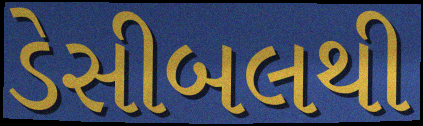
ડેસીબલથી